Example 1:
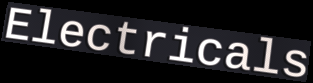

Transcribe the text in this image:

Electricals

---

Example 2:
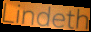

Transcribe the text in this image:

Lindeth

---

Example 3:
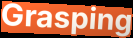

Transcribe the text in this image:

Grasping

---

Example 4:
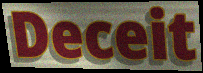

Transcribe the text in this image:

Deceit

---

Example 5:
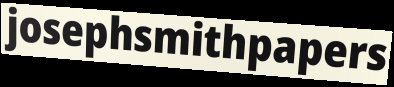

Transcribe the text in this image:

josephsmithpapers